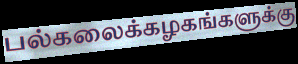
பல்கலைக்கழகங்களுக்கு